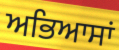
ਅਭਿਆਸਾਂ